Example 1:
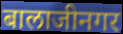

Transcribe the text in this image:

बालाजीनगर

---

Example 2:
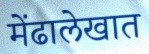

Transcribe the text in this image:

मेंढालेखात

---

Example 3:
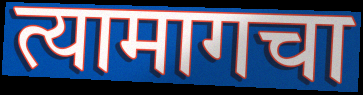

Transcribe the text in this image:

त्यामागचा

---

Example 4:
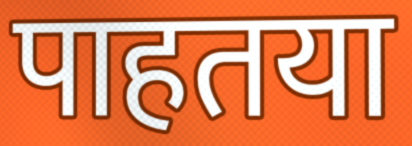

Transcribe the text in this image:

पाहतया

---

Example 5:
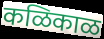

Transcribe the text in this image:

कळिकाळ